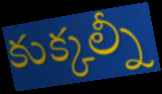
కుక్కల్నీ